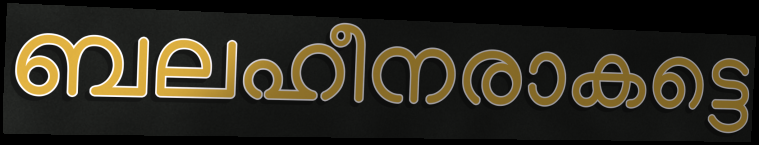
ബലഹീനരാകട്ടെ